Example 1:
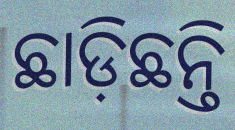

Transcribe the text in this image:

ଛାଡ଼ିଛନ୍ତି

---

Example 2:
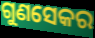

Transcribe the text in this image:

ଗୁଣସେକର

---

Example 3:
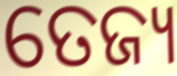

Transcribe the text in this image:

ତେଜ୍ୟ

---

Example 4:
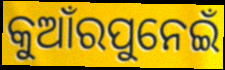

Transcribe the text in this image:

କୁଆଁରପୁନେଇଁ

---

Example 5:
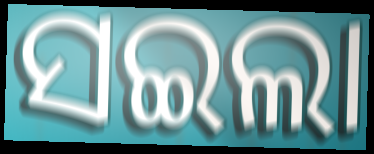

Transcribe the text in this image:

ସଇଲା